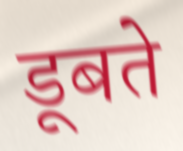
डूबते